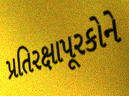
પ્રતિરક્ષાપૂરકોને